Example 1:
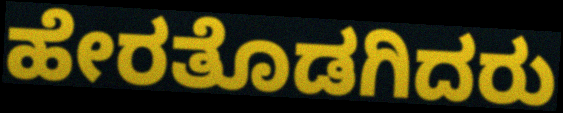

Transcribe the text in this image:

ಹೇರತೊಡಗಿದರು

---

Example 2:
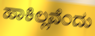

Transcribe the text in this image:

ಹಾಕಿಲ್ಲವೆಂದು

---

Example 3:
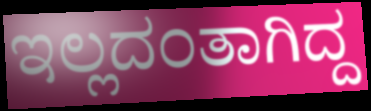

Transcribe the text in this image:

ಇಲ್ಲದಂತಾಗಿದ್ದ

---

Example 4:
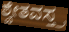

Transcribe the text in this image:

ಶ್ವೇತವಸ್ತ್ರ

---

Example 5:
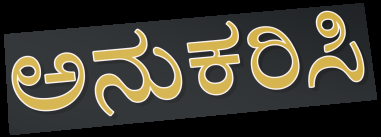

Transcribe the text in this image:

ಅನುಕರಿಸಿ